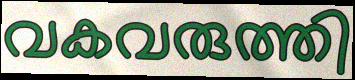
വകവരുത്തി